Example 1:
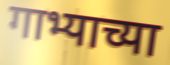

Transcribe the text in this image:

गाभ्याच्या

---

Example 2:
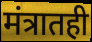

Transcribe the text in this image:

मंत्रातही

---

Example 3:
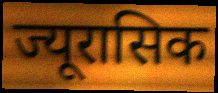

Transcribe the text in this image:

ज्यूरासिक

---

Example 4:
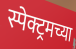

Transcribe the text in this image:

स्पेक्ट्रमच्या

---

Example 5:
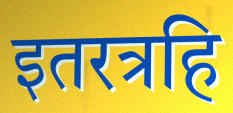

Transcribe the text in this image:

इतरत्रहि